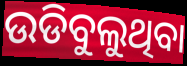
ଉଡିବୁଲୁଥିବା